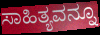
ಸಾಹಿತ್ಯವನ್ನೂ